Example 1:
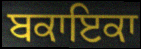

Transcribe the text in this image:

ਬਕਾਇਕਾ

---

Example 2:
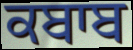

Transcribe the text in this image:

ਕਬਾਬ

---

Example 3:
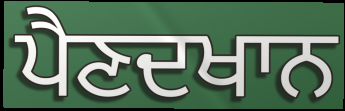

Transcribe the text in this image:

ਪੈਣਦਖਾਨ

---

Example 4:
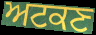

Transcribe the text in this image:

ਅਟਕਣ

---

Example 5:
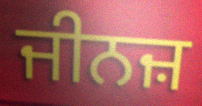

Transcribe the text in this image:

ਜੀਨਜ਼